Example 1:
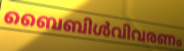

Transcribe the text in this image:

ബൈബിൾവിവരണം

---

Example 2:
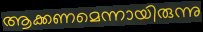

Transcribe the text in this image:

ആക്കണമെന്നായിരുന്നു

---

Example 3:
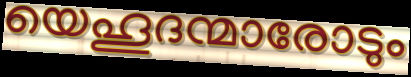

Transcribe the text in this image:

യെഹൂദന്മാരോടും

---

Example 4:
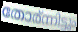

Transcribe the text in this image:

തോര്ന്നിട്ടും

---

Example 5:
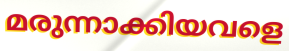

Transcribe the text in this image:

മരുന്നാക്കിയവളെ